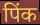
पिंक